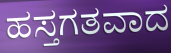
ಹಸ್ತಗತವಾದ